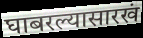
घाबरल्यासारखं